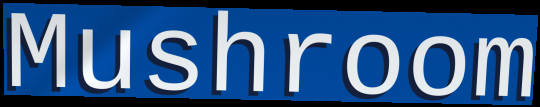
Mushroom